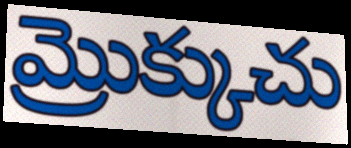
మ్రొక్కుచు